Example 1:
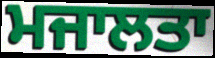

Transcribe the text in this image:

ਮਜਾਲਤਾ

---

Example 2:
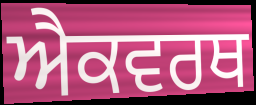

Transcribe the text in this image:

ਐਕਵਰਥ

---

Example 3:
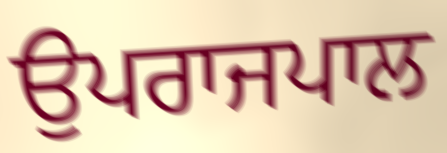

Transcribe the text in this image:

ਉਪਰਾਜਪਾਲ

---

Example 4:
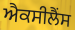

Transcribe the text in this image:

ਐਕਸੀਲੈਂਸ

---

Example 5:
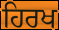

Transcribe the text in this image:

ਹਿਰਖ